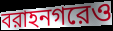
বরাহনগরেও